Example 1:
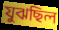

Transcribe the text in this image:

যুঝছিল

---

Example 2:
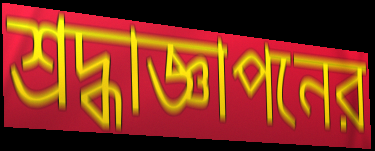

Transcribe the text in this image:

শ্রদ্ধাজ্ঞাপনের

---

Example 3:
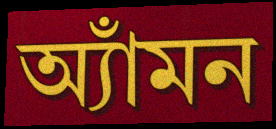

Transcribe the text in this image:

অ্যাঁমন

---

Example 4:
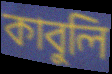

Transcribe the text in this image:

কাবুলি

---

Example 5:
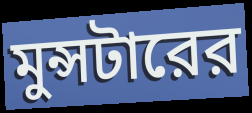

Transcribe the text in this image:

মুন্সটারের